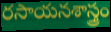
రసాయనశాస్త్రం